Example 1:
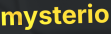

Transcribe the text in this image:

mysterio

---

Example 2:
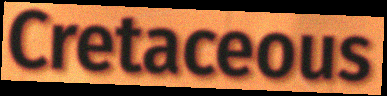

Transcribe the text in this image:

Cretaceous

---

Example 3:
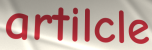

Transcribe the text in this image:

artilcle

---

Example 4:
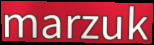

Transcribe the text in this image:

marzuk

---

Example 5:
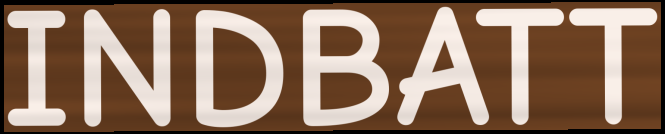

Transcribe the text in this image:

INDBATT